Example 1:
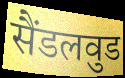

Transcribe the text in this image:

सैंडलवुड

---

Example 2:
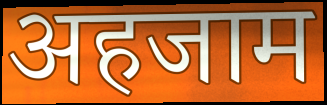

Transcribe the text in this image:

अहजाम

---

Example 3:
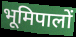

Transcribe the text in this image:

भूमिपालों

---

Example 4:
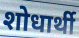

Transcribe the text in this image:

शोधार्थी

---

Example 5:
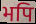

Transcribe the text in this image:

भपि